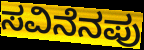
ಸವಿನೆನಪು